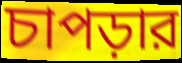
চাপড়ার